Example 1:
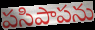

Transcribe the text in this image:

పసిపాపను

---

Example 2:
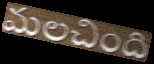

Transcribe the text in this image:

మలచింది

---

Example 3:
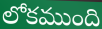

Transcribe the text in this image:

లోకముంది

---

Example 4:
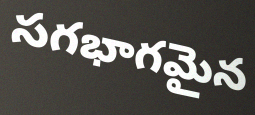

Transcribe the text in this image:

సగభాగమైన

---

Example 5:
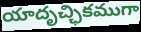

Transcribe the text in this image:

యాదృచ్ఛికముగా